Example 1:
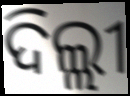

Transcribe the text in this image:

ଦିଲ୍ଲୀ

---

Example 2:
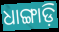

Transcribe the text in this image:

ଧାଙ୍ଗାଡ଼ି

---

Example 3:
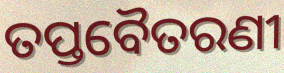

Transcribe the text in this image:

ତପ୍ତବୈତରଣୀ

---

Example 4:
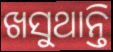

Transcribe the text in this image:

ଖସୁଥାନ୍ତି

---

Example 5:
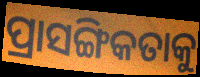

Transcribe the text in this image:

ପ୍ରାସଙ୍ଗିକତାକୁ